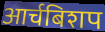
आर्चबिशप